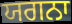
ਯਗਨਾ